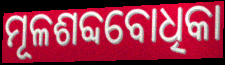
ମୂଳଶବ୍ଦବୋଧିକା